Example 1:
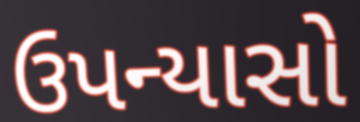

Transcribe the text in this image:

ઉપન્યાસો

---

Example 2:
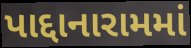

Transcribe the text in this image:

પાદ્દાનારામમાં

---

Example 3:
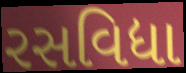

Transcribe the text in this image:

રસવિદ્યા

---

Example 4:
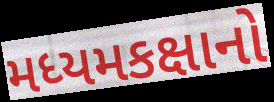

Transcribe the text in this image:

મધ્યમકક્ષાનો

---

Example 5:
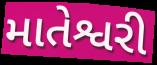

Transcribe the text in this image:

માતેશ્વરી